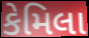
કેમિલા